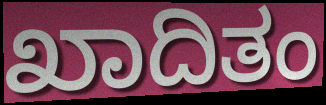
ಖಾದಿತಂ